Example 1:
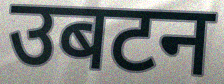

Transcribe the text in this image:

उबटन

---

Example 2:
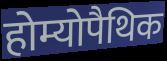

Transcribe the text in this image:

होम्‍योपैथिक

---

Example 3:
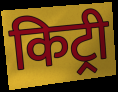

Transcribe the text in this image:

किट्री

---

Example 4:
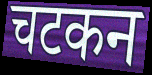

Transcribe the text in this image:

चटकन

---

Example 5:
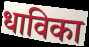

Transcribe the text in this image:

धाविका